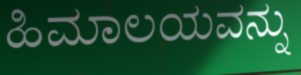
ಹಿಮಾಲಯವನ್ನು